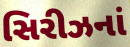
સિરીઝનાં